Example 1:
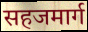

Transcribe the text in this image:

सहजमार्ग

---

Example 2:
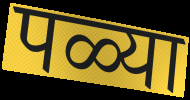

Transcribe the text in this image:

पळ्या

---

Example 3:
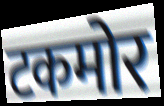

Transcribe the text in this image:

टकमोर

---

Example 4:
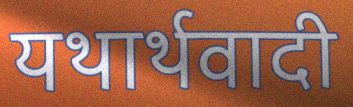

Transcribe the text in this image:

यथार्थवादी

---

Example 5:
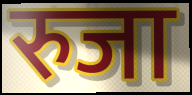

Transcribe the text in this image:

रुजा